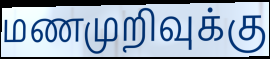
மணமுறிவுக்கு